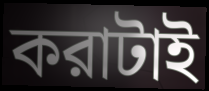
করাটাই